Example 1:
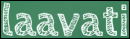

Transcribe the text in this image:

laavati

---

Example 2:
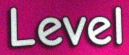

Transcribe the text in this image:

Level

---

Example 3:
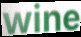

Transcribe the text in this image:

wine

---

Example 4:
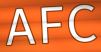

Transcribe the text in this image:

AFC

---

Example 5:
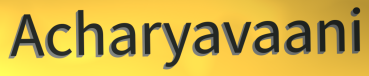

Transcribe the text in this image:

Acharyavaani